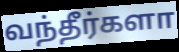
வந்தீர்களா